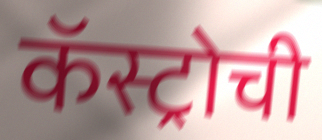
कॅस्ट्रोची